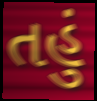
તહું